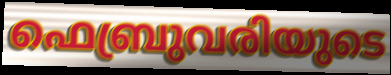
ഫെബ്രുവരിയുടെ